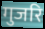
गुजरि